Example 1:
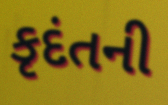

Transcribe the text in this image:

કૃદંતની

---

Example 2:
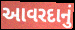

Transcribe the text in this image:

આવરદાનું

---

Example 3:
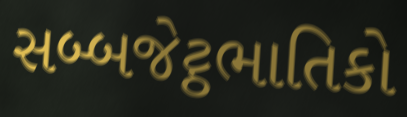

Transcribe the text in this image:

સબ્બજેટ્ઠભાતિકો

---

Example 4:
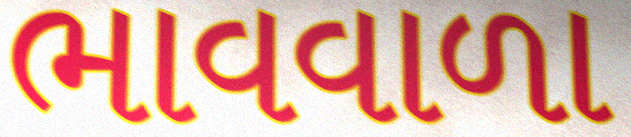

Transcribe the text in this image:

ભાવવાળા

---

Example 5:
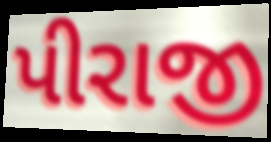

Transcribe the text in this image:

પીરાજી